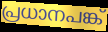
പ്രധാനപങ്ക്